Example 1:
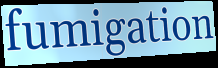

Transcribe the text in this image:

fumigation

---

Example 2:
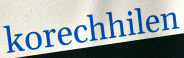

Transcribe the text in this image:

korechhilen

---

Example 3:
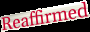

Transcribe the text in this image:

Reaffirmed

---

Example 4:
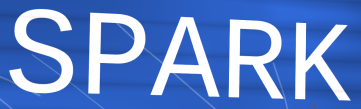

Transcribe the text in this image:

SPARK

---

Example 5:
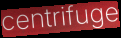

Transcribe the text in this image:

centrifuge